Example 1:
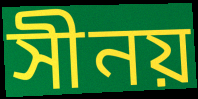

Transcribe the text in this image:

সীনয়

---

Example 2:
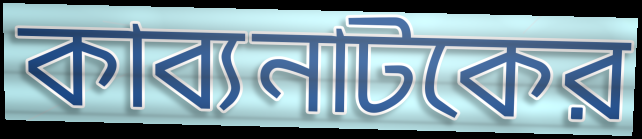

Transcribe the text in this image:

কাব্যনাটকের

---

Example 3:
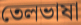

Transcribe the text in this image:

তেলভাষা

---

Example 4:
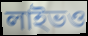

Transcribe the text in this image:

লাইভও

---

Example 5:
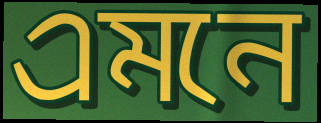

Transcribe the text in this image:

এমনে